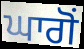
ਘਾਗੋਂ